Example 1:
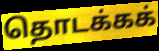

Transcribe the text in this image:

தொடக்கக்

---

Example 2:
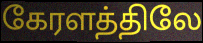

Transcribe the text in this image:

கேரளத்திலே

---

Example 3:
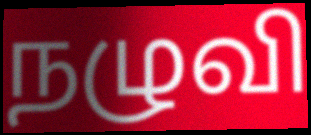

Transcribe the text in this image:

நழுவி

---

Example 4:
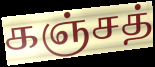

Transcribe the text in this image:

கஞ்சத்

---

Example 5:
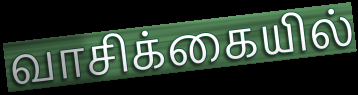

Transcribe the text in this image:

வாசிக்கையில்